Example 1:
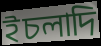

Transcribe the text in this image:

ইচলাদি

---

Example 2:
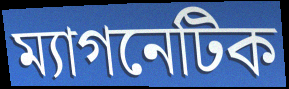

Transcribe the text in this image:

ম্যাগনেটিক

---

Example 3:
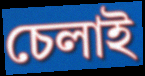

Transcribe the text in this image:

চেলাই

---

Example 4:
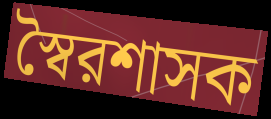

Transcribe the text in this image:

স্বৈরশাসক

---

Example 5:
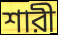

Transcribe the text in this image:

শারী